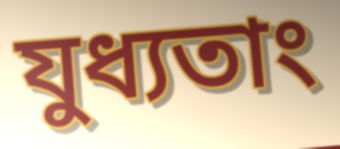
যুধ্যতাং